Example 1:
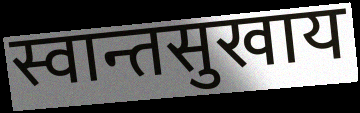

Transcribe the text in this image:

स्वान्तसुखाय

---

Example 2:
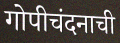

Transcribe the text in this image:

गोपीचंदनाची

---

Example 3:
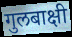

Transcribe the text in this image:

गुलबाक्षी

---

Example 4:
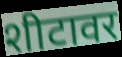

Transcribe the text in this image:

शीटावर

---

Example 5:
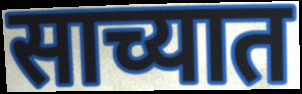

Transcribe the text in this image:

साच्यात